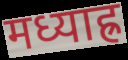
मध्याह्र